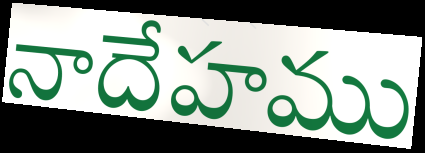
నాదేహము